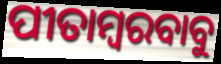
ପୀତାମ୍ବରବାବୁ